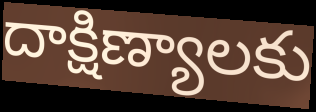
దాక్షిణ్యాలకు